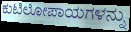
ಕುಟಿಲೋಪಾಯಗಳನ್ನು